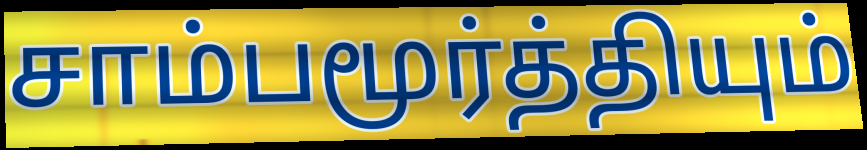
சாம்பமூர்த்தியும்